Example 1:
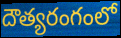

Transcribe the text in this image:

దౌత్యరంగంలో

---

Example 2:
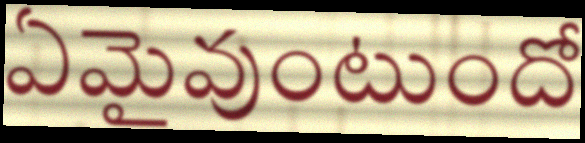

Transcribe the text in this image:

ఏమైవుంటుందో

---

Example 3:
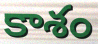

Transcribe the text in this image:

కాశం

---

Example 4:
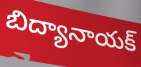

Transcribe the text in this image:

బిద్యానాయక్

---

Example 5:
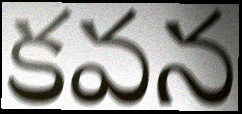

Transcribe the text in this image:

కవన